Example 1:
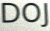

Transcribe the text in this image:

DOJ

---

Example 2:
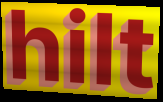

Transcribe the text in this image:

hilt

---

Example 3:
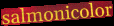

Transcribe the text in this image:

salmonicolor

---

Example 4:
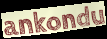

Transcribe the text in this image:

ankondu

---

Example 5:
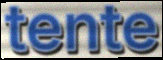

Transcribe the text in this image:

tente